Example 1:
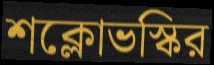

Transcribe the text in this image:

শক্লোভস্কির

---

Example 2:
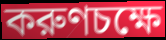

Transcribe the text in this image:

করুণচক্ষে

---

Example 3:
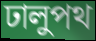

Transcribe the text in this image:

ঢালুপথ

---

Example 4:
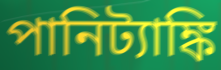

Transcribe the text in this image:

পানিট্যাঙ্কি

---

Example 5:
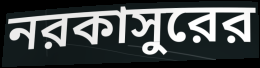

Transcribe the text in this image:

নরকাসুরের